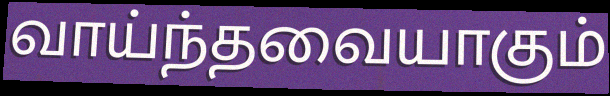
வாய்ந்தவையாகும்